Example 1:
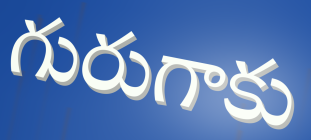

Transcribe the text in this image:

గురుగాకు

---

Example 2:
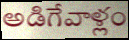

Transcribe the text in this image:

అడిగేవాళ్లం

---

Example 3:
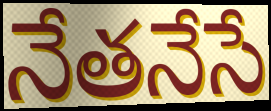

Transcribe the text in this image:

నేతనేసే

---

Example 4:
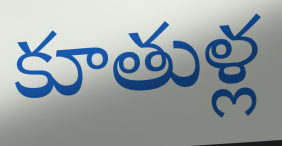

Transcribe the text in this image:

కూతుళ్ల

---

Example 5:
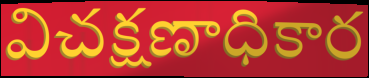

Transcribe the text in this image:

విచక్షణాధికార